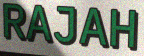
RAJAH